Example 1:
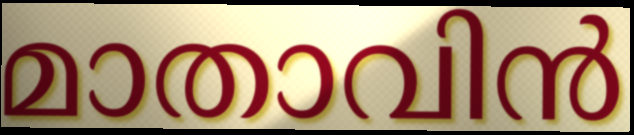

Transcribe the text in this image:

മാതാവിൻ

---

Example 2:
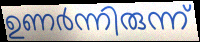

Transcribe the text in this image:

ഉണർന്നിരുന്ന്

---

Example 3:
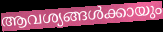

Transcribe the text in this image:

ആവശ്യങ്ങൾക്കായും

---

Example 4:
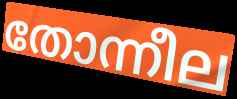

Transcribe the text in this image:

തോന്നീല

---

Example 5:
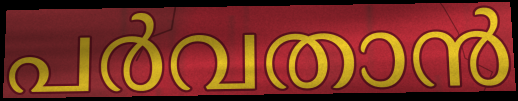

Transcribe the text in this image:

പർവതാൻ